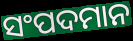
ସଂପଦମାନ